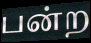
பன்ற